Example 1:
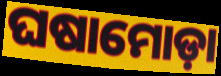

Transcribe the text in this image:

ଘଷାମୋଡ଼ା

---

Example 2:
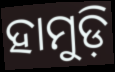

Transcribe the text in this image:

ହାମୁଡ଼ି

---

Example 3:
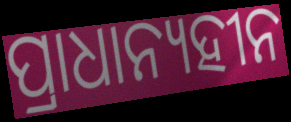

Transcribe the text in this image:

ପ୍ରାଧାନ୍ୟହୀନ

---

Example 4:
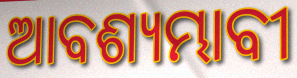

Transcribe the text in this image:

ଆବଶ୍ୟମ୍ଭାବୀ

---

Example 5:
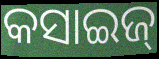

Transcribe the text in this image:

କସାଇଜ୍